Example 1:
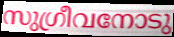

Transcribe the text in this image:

സുഗ്രീവനോടു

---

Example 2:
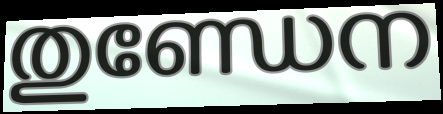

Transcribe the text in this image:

തുണ്ഡേന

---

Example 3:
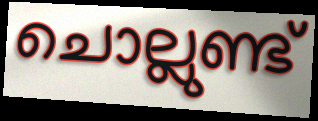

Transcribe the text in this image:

ചൊല്ലുണ്ട്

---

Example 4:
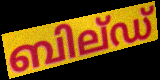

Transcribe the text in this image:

ബില്ഡ്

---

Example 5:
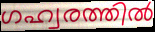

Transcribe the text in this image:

ഗഹ്വരത്തിൽ